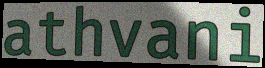
athvani